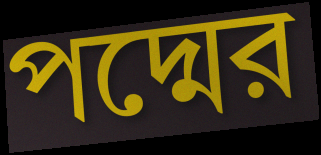
পদ্মের